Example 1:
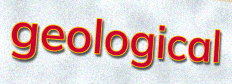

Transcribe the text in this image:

geological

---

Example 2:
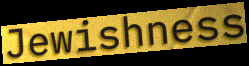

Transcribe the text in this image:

Jewishness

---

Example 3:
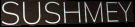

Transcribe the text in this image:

SUSHMEY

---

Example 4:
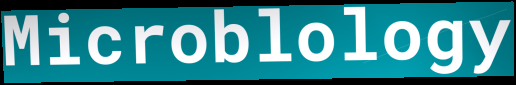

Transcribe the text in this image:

Microblology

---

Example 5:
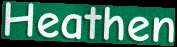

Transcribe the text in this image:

Heathen